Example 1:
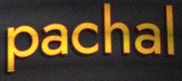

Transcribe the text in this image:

pachal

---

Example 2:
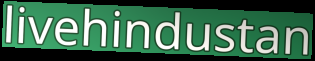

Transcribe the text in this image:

livehindustan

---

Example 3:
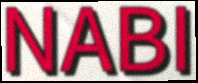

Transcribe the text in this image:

NABI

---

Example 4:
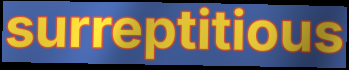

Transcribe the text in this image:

surreptitious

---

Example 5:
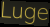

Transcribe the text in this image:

Luge